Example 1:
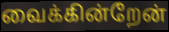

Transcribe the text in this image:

வைக்கின்றேன்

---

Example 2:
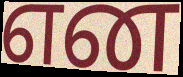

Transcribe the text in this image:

என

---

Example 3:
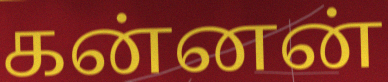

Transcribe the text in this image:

கன்னன்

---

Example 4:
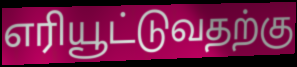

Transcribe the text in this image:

எரியூட்டுவதற்கு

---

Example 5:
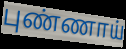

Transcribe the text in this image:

புண்ணாய்